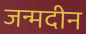
जन्मदीन